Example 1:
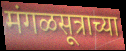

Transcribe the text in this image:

मंगळसूत्राच्या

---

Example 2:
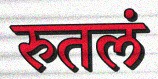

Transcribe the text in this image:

रुतलं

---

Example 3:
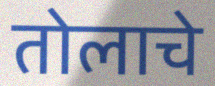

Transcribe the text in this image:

तोलाचे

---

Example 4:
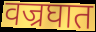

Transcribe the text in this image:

वज्रघात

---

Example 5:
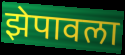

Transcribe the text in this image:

झेपावला